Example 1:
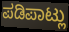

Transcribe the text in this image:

ಪಡಿಪಾಟ್ಲು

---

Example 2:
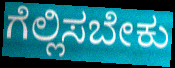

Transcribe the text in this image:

ಗೆಲ್ಲಿಸಬೇಕು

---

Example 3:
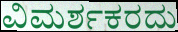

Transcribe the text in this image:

ವಿಮರ್ಶಕರದು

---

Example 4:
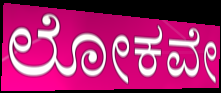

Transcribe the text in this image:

ಲೋಕವೇ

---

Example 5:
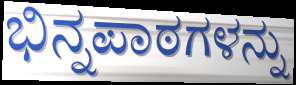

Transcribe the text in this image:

ಭಿನ್ನಪಾಠಗಳನ್ನು